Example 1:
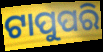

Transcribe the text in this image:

ଟାପୁପରି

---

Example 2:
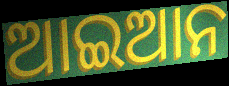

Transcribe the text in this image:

ଆଇଆନ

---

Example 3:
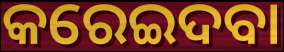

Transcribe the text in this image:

କରେଇଦବା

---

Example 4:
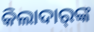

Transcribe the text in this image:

କିଲାଦାର୍‍ଙ୍କ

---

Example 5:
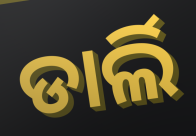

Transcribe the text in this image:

ଡାର୍ଲି